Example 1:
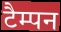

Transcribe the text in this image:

टैम्पन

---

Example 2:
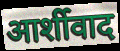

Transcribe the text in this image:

आर्शीवाद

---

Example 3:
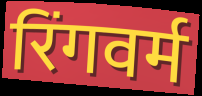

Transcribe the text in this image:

रिंगवर्म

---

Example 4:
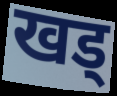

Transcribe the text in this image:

खड्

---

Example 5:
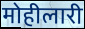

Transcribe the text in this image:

मोहीलारी